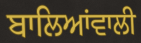
ਬਾਲਿਆਂਵਾਲੀ